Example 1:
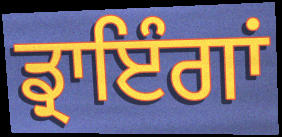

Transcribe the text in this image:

ਡ੍ਰਾਇੰਗਾਂ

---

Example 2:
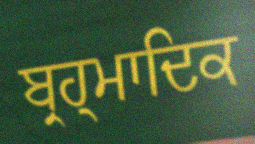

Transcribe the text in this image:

ਬ੍ਰਹ੍ਮਾਦਿਕ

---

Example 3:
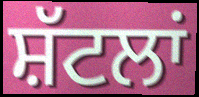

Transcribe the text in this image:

ਸ਼ੱਟਲਾਂ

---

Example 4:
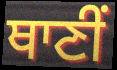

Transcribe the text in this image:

ਥਾਣੀਂ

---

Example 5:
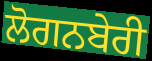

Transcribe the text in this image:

ਲੋਗਨਬੇਰੀ